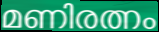
മണിരത്നം